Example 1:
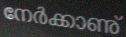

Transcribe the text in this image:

നേർക്കാണു്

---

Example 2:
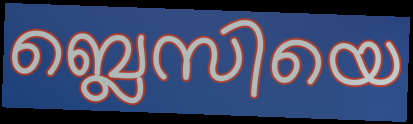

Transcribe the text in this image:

ബ്ലെസിയെ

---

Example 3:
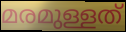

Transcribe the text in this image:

മരമുള്ളത്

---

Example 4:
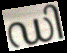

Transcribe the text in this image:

ഡി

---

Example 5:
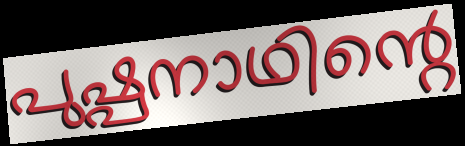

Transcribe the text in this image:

പുഷ്പനാഥിന്റെ